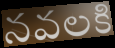
నవలకి